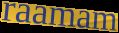
raamam